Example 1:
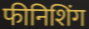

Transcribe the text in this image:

फीनिशिंग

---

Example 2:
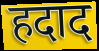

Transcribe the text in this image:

हदाद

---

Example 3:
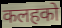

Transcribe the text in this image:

कलहको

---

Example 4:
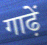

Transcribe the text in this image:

गाढ़ें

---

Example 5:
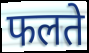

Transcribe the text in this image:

फलते